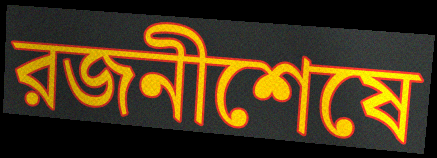
রজনীশেষে